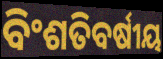
ବିଂଶତିବର୍ଷୀୟ